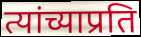
त्यांच्याप्रति